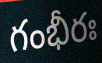
గంభీరః